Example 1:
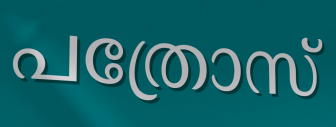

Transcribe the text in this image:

പത്രോസ്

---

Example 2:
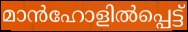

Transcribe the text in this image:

മാൻഹോളിൽപ്പെട്ട്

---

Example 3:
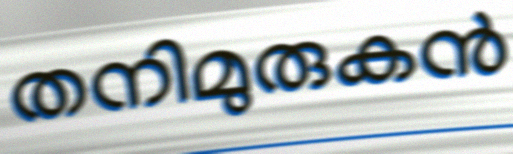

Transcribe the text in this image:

തനിമുരുകൻ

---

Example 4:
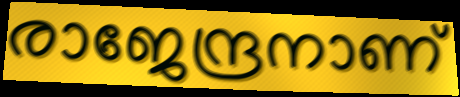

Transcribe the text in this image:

രാജേന്ദ്രനാണ്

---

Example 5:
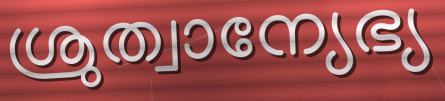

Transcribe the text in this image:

ശ്രുത്വാന്യേഭ്യ